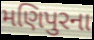
મણિપુરના